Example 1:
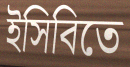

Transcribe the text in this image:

ইসিবিতে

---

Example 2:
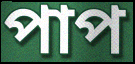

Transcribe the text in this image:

পাপ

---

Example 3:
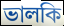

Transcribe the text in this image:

ভালকি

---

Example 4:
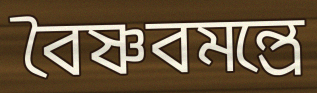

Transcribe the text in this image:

বৈষ্ণবমন্ত্রে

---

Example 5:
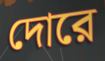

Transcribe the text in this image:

দোরে